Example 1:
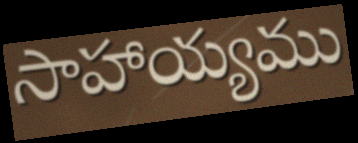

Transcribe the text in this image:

సాహాయ్యము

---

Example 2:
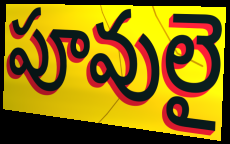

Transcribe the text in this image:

పూవులై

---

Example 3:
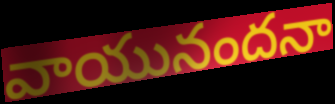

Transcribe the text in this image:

వాయునందనా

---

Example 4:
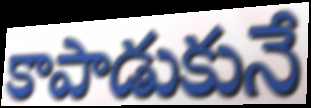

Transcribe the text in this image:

కాపాడుకునే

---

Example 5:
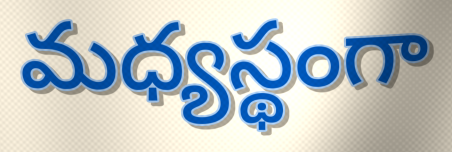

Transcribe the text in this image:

మధ్యస్థంగా